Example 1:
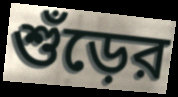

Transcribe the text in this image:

শুঁড়ের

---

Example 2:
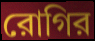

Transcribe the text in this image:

রোগির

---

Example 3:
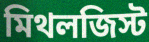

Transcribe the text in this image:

মিথলজিস্ট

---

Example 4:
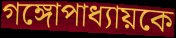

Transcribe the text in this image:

গঙ্গোপাধ্যায়কে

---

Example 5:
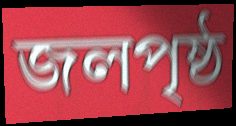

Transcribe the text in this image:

জলপৃষ্ঠ